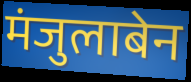
मंजुलाबेन